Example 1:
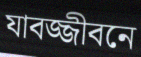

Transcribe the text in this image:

যাবজ্জীবনে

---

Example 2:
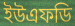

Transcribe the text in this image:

ইউএফডি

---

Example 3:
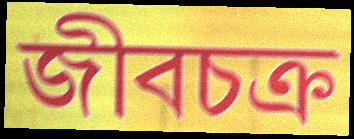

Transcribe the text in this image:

জীবচক্র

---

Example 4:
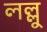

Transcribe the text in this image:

লল্লু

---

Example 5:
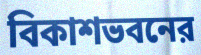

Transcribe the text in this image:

বিকাশভবনের